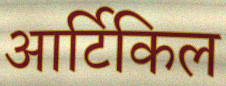
आर्टिकिल